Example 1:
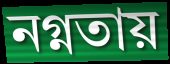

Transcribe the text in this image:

নগ্নতায়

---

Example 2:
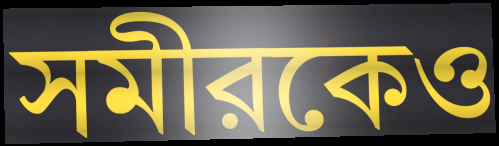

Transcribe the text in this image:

সমীরকেও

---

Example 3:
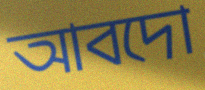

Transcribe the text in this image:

আবদো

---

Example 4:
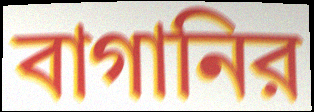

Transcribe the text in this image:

বাগানির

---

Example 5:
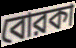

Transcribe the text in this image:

বোরকা